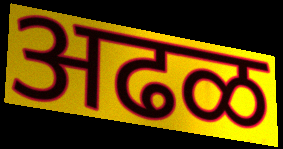
अढळ